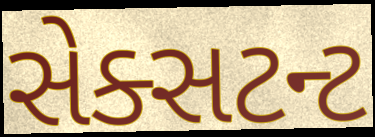
સેક્સટન્ટ